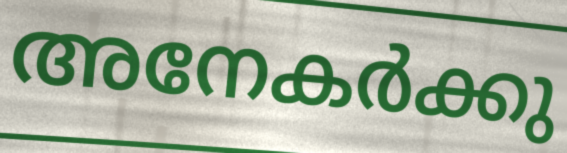
അനേകർക്കു